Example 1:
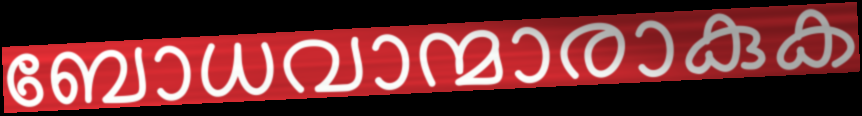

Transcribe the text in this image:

ബോധവാന്മാരാകുക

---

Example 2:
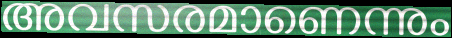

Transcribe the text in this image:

അവസരമാണെന്നും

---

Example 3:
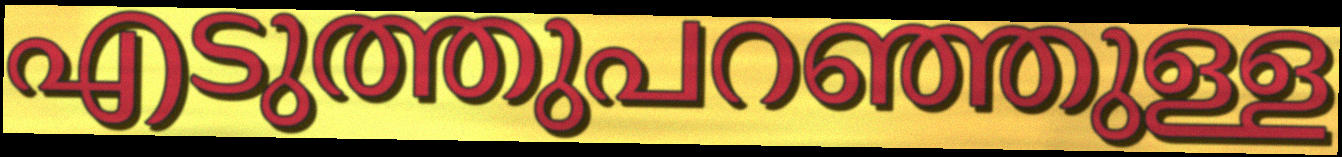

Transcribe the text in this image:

എടുത്തുപറഞ്ഞുള്ള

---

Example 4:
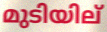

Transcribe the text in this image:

മുടിയില്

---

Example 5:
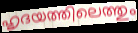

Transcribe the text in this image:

ഹൃദയത്തിലെത്തും